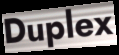
Duplex